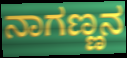
ನಾಗಣ್ಣನ